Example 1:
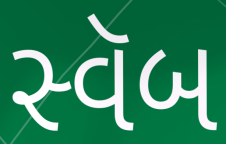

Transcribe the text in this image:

સ્વૅબ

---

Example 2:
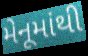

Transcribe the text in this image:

મેનૂમાંથી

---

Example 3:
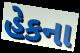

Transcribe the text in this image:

હેકના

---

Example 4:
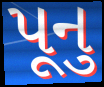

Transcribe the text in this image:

પૂનુ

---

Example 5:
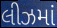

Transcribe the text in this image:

લીઝમાં